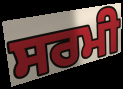
ਸਰਮੀ